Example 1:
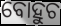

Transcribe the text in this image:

ବୋହୁଚ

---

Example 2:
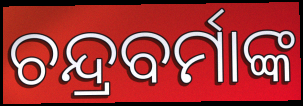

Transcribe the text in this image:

ଚନ୍ଦ୍ରବର୍ମାଙ୍କ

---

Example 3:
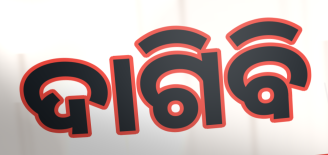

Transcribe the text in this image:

ଦାଗିବି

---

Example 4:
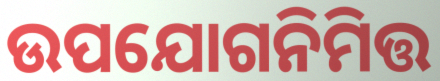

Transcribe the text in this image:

ଉପଯୋଗନିମିତ୍ତ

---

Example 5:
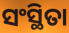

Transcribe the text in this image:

ସଂସ୍ଥିତା